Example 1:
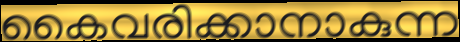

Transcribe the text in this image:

കൈവരിക്കാനാകുന്ന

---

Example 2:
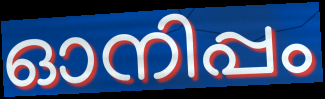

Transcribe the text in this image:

ഓനിപ്പം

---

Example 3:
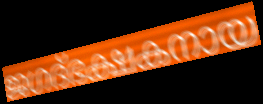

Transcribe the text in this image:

ജഗദ്ഭക്ഷകനായ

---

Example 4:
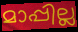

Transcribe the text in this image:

മാപ്പില്ല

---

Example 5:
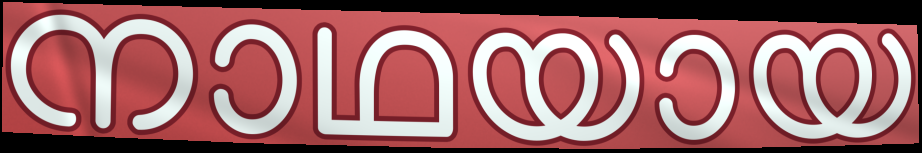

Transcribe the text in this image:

നാഥയായ